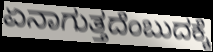
ಏನಾಗುತ್ತದೆಂಬುದಕ್ಕೆ